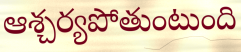
ఆశ్చర్యపోతుంటుంది